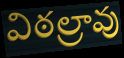
విఠల్రావు